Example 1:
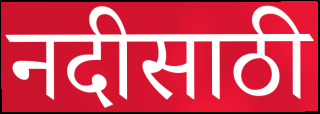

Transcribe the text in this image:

नदीसाठी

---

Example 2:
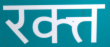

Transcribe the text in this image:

रक्त्त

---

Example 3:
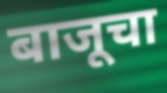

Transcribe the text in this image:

बाजूचा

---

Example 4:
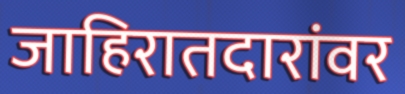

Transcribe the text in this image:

जाहिरातदारांवर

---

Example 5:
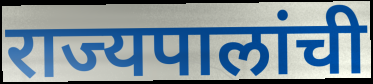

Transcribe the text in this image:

राज्यपालांची